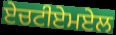
ਏਚਟੀਏਮਏਲ